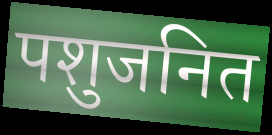
पशुजनित